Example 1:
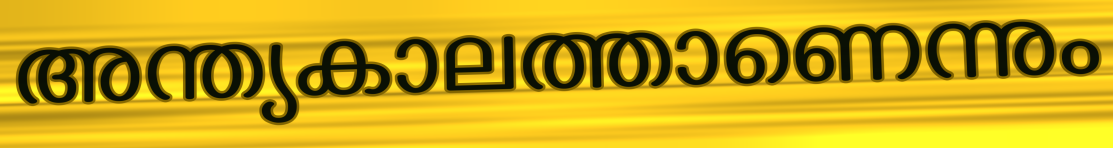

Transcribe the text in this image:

അന്ത്യകാലത്താണെന്നും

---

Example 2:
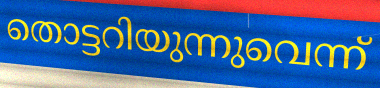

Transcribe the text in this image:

തൊട്ടറിയുന്നുവെന്ന്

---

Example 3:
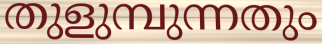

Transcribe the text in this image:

തുളുമ്പുന്നതും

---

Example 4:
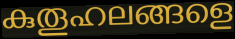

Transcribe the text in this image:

കുതൂഹലങ്ങളെ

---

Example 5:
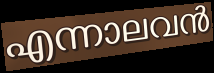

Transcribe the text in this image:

എന്നാലവൻ